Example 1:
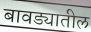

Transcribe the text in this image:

बावड्यातील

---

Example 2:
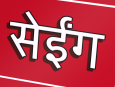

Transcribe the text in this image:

सेईंग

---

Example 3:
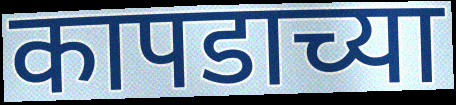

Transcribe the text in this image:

कापडाच्या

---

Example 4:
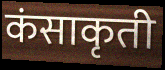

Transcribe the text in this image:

कंसाकृती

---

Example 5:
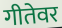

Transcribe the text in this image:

गीतेवर